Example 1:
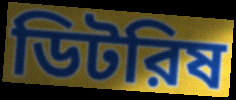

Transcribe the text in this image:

ডিটরিষ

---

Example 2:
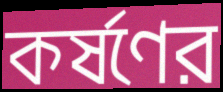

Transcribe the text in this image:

কর্ষণের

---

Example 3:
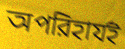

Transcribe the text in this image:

অপরিহার্যই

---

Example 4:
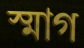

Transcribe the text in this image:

স্মাগ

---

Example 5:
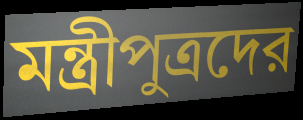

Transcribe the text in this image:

মন্ত্রীপুত্রদের